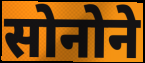
सोनोने